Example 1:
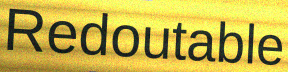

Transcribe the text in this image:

Redoutable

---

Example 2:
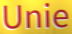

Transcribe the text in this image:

Unie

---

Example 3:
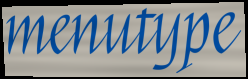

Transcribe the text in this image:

menutype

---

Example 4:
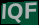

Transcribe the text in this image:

IQF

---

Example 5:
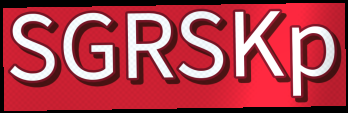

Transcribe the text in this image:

SGRSKp